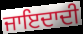
ਜਾਇਦਾਦੀ